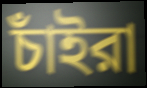
চাঁইরা